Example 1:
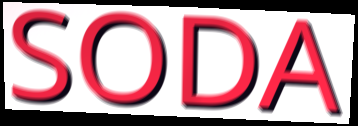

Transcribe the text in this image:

SODA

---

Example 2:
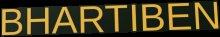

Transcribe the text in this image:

BHARTIBEN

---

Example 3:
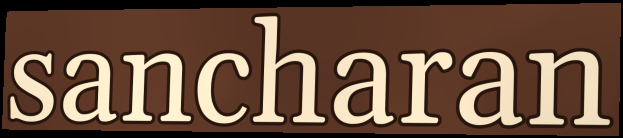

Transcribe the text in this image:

sancharan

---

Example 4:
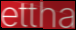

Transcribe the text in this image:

ettha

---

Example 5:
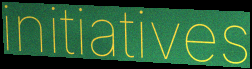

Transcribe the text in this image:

initiatives